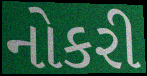
નોકરી